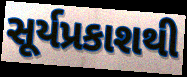
સૂર્યપ્રકાશથી